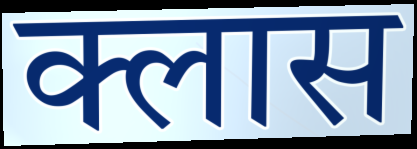
क्लास